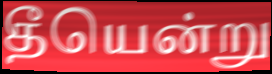
தீயென்று